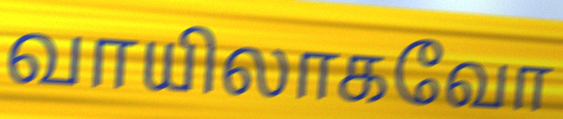
வாயிலாகவோ